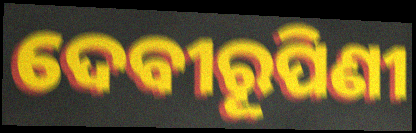
ଦେବୀରୂପିଣୀ